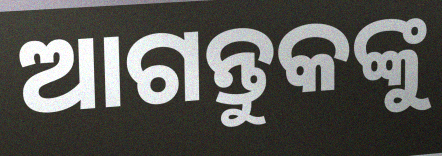
ଆଗନ୍ତୁକଙ୍କୁ